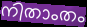
നിതാംതം